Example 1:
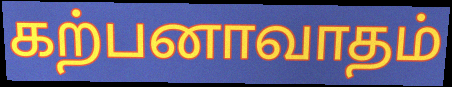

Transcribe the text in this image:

கற்பனாவாதம்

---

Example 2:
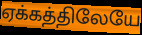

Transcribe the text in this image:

ஏக்கத்திலேயே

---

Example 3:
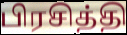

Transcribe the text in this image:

பிரசித்தி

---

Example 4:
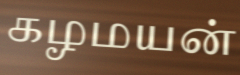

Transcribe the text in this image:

கழமயன்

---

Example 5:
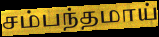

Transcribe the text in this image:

சம்பந்தமாய்